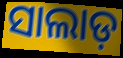
ସାଲାଡ଼